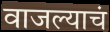
वाजल्याचं